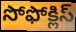
సోఫోక్లిస్